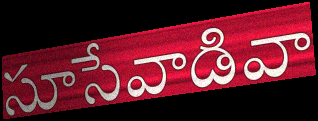
సూసేవాడివా